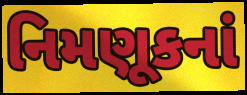
નિમણૂકનાં